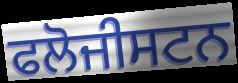
ਫਲੋਜੀਸਟਨ